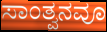
ಸಾಂತ್ವನವೂ